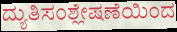
ದ್ಯುತಿಸಂಶ್ಲೇಷಣೆಯಿಂದ